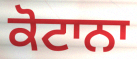
ਕੋਟਾਨਾ